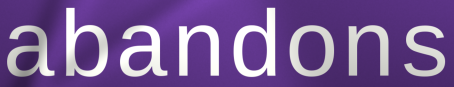
abandons